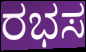
ರಭಸ